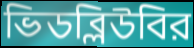
ভিডব্লিউবির